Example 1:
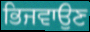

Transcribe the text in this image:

ਭਿਜਵਾਉਣ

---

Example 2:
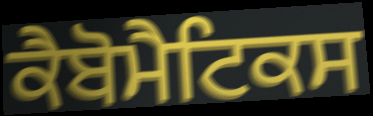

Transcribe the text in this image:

ਕੈਬੋਮੈਟਿਕਸ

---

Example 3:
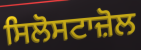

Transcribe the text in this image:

ਸਿਲੋਸਟਾਜ਼ੋਲ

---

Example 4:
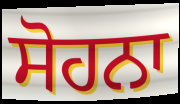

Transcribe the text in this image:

ਸੋਹਨਾ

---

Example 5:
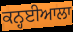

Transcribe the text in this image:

ਕਨ੍ਹਈਆਲਾ